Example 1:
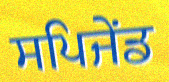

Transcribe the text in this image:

ਸਪਿਜੇਂਡ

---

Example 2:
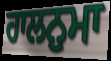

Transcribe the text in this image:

ਹਾਲਨੁਮਾ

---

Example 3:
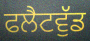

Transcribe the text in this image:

ਫਲੈਟਵੁੱਡ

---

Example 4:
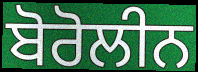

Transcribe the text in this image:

ਬੋਰੋਲੀਨ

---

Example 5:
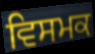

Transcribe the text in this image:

ਵਿਸਮਕ